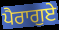
ਪੈਰਾਗੁਏ